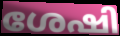
ശേഷി